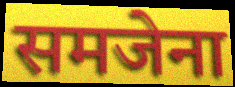
समजेना